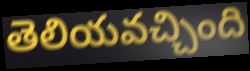
తెలియవచ్చింది